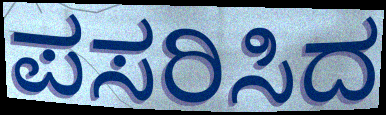
ಪಸರಿಸಿದ